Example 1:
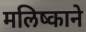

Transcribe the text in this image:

मलिष्काने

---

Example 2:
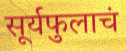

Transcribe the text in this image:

सूर्यफुलाचं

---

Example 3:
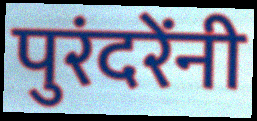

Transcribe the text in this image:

पुरंदरेंनी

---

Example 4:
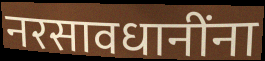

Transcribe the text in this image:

नरसावधानींना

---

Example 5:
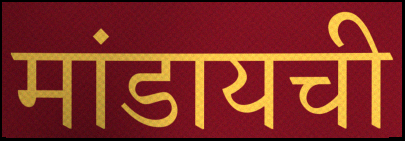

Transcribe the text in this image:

मांडायची